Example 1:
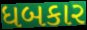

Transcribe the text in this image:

ધબકાર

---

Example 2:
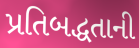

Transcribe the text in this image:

પ્રતિબદ્ધતાની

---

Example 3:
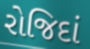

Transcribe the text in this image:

રોજિદાં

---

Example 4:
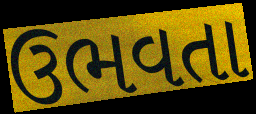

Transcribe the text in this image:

ઉભવતા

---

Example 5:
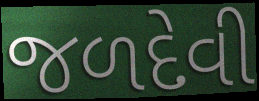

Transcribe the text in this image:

જળદેવી